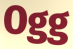
Ogg